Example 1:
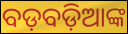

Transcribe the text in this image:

ବଡ଼ବଡ଼ିଆଙ୍କ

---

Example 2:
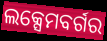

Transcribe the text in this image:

ଲକ୍ସେମବର୍ଗର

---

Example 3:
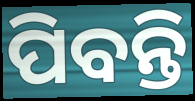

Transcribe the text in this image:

ପିବନ୍ତି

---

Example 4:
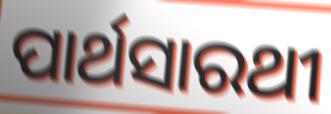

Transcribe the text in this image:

ପାର୍ଥସାରଥୀ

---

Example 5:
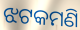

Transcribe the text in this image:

ଝଟକମଣି